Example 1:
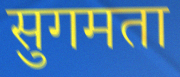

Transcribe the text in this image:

सुगमता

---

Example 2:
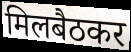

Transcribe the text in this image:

मिलबैठकर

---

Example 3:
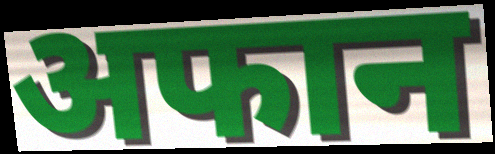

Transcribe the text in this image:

अफान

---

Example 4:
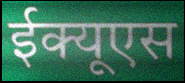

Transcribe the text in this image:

ईक्यूएस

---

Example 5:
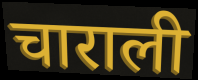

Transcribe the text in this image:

चाराली